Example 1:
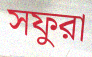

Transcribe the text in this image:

সফুরা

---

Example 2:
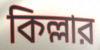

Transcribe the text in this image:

কিল্লার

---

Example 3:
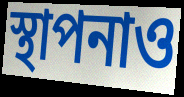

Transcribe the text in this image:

স্থাপনাও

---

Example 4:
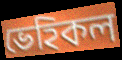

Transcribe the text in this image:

ভেহিকল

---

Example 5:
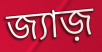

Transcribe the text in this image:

জ্যাজ়